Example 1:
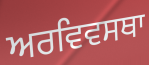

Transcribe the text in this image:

ਅਰਵਿਵਸਥਾ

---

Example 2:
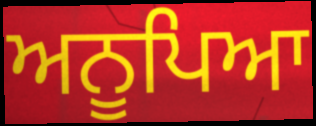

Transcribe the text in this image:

ਅਨੂਪਿਆ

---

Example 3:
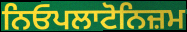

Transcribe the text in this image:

ਨਿਓਪਲਾਟੋਨਿਜ਼ਮ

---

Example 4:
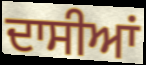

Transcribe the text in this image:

ਦਾਸੀਆਂ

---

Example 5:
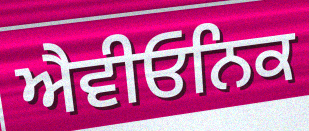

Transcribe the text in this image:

ਐਵੀਓਨਿਕ